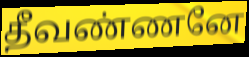
தீவண்ணனே